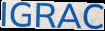
IGRAC